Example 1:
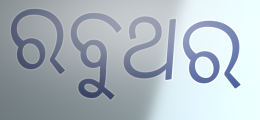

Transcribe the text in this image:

ରବୁଥର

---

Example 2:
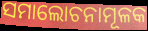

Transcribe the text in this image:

ସମାଲୋଚନାମୂଳକ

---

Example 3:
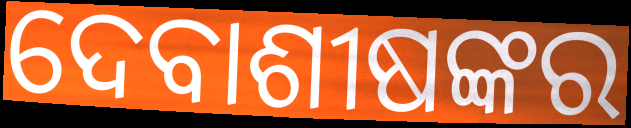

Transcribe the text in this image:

ଦେବାଶୀଷଙ୍କର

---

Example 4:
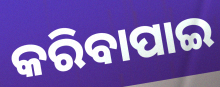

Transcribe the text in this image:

କରିବାପାଇ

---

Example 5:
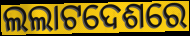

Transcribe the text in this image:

ଲଲାଟଦେଶରେ